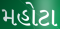
મહોટા